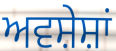
ਅਵਸ਼ੇਸ਼ਾਂ